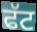
ਫੱਟ